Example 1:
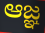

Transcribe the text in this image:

ఆజ్ఞ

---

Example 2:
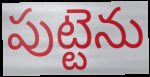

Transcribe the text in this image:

పుట్టెను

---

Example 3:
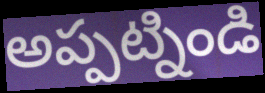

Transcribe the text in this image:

అప్పట్నిండి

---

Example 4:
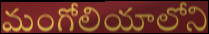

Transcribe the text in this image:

మంగోలియాలోని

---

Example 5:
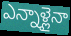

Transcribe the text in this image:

ఎన్నాళ్లైనా